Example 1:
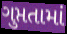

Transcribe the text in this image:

ગુપ્તતામાં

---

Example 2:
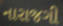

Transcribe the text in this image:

નારાજગી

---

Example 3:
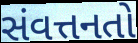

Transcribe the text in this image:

સંવત્તનતો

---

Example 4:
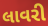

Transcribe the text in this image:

લાવરી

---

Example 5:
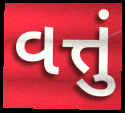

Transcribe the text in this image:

વત્તું